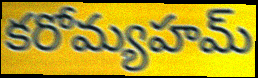
కరోమ్యహమ్